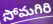
సోమగిరి